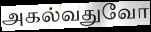
அகல்வதுவோ